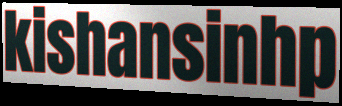
kishansinhp